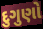
દુગુણો